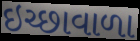
ઇચ્છાવાળા